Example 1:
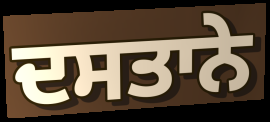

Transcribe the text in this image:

ਦਸਤਾਨੇ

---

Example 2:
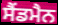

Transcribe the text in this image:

ਸੈਂਡਮੈਨ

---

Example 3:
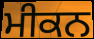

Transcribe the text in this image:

ਮੀਕਨ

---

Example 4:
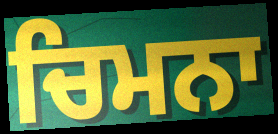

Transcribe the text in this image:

ਚਿਮਨਾ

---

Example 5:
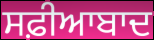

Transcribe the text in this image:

ਸਫ਼ੀਆਬਾਦ